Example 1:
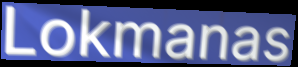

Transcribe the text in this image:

Lokmanas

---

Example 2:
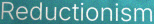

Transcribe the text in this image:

Reductionism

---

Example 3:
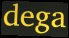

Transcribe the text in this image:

dega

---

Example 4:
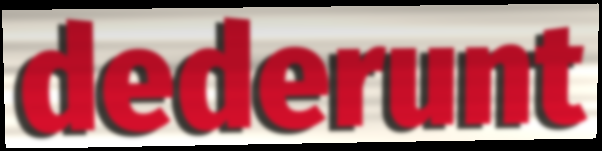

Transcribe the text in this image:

dederunt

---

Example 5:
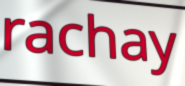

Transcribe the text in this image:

rachay